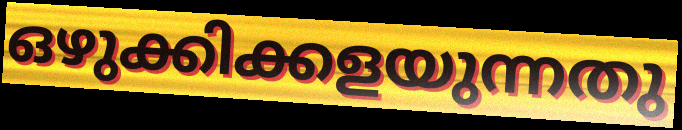
ഒഴുക്കിക്കളയുന്നതു